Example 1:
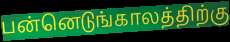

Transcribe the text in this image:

பன்னெடுங்காலத்திற்கு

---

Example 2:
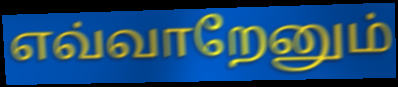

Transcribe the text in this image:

எவ்வாறேனும்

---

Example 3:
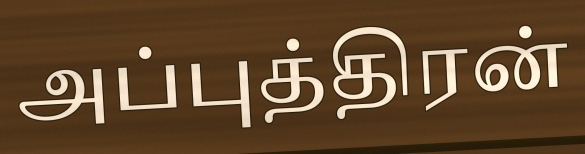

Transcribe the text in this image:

அப்புத்திரன்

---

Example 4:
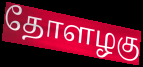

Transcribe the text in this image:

தோளழகு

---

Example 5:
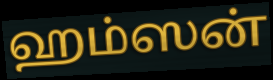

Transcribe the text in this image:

ஹம்ஸன்